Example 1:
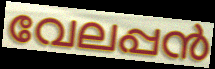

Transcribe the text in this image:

വേലപ്പൻ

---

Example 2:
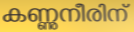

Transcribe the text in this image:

കണ്ണുനീരിന്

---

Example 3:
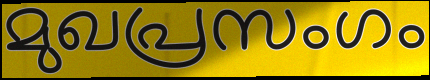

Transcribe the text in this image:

മുഖപ്രസംഗം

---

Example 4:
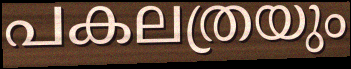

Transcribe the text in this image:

പകലത്രയും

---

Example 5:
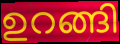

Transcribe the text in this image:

ഉറങ്ങി